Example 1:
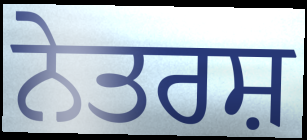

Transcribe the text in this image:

ਨੇਤਰਸ਼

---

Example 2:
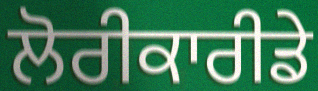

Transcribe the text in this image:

ਲੋਰੀਕਾਰੀਡੇ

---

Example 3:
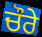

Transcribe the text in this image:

ਚੌਰੇ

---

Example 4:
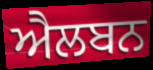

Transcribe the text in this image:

ਐਲਬਨ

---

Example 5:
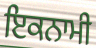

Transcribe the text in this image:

ਇਕਨਾਮੀ